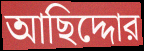
আছিদ্দোর